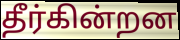
தீர்கின்றன